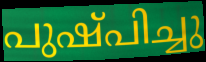
പുഷ്പിച്ചു